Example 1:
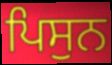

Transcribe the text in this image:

ਪਿਸੁਨ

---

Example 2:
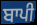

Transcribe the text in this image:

ਬਾਪੀ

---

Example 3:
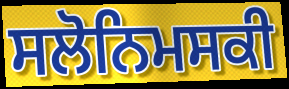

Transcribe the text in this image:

ਸਲੋਨਿਮਸਕੀ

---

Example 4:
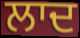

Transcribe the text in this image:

ਲਾਦ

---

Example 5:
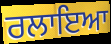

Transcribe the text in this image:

ਰਲਾਇਆ